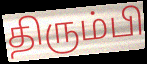
திரும்பி